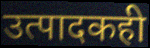
उत्पादकही